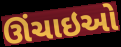
ઊંચાઇઓ